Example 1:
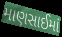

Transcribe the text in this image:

માણસાઈમાં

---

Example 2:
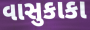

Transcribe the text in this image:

વાસુકાકા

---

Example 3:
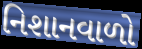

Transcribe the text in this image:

નિશાનવાળો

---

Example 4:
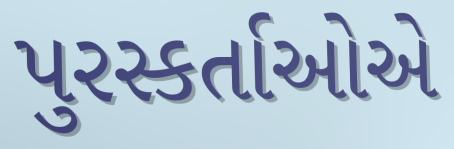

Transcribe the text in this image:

પુરસ્કર્તાઓએ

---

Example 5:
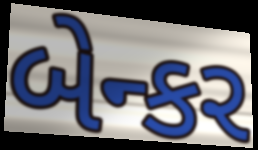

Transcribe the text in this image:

બેન્કર